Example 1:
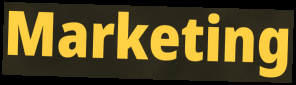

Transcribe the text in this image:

Marketing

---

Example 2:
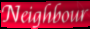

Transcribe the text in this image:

Neighbour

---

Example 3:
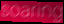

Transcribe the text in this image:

soaring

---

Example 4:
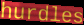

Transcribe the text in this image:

hurdles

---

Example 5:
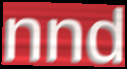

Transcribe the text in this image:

nnd